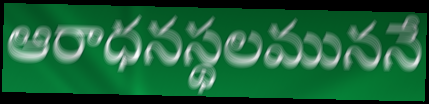
ఆరాధనస్థలముననే